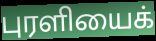
புரளியைக்